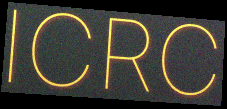
ICRC